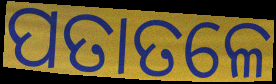
ପତାତଳେ